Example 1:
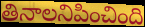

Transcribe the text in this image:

తినాలనిపించింది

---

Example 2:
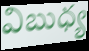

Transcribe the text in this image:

విబుధ్య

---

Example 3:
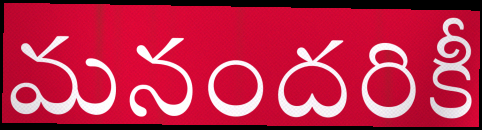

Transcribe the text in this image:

మనందరికీ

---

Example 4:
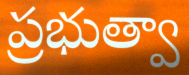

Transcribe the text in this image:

ప్రభుత్వా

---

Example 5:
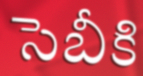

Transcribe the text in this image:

సెబీకి